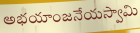
అభయాంజనేయస్వామి